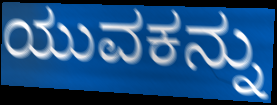
ಯುವಕನ್ನು